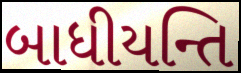
બાધીયન્તિ